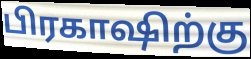
பிரகாஷிற்கு